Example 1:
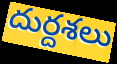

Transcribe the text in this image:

దుర్దశలు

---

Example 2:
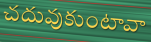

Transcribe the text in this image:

చదువుకుంటావా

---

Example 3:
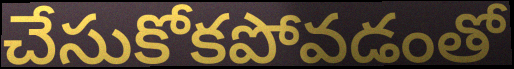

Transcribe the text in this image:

చేసుకోకపోవడంతో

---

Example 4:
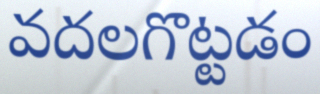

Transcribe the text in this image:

వదలగొట్టడం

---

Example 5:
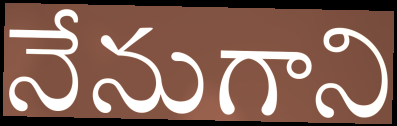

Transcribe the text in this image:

నేనుగాని